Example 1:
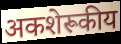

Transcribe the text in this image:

अकशेरूकीय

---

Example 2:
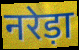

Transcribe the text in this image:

नरेड़ा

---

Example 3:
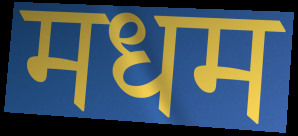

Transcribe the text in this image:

मधम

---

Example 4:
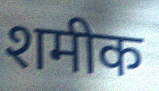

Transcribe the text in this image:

शमीक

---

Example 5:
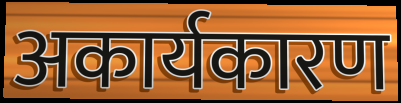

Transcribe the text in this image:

अकार्यकारण